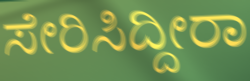
ಸೇರಿಸಿದ್ದೀರಾ